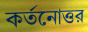
কর্তনোত্তর